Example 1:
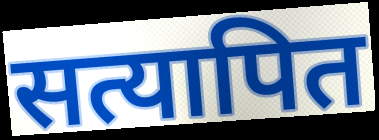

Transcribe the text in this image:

सत्यापित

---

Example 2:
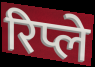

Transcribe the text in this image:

रिप्ले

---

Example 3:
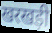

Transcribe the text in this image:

खरखड़ी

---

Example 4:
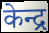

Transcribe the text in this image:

केन्द्र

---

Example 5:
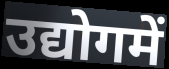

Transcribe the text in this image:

उद्योगमें